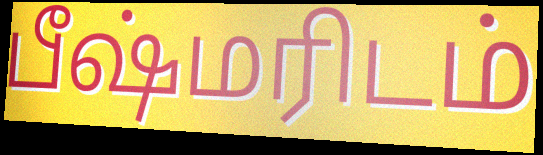
பீஷ்மரிடம்